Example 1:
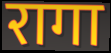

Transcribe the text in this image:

रागा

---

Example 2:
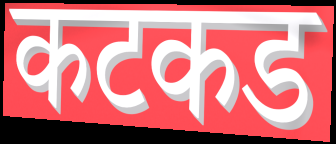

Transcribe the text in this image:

कटकड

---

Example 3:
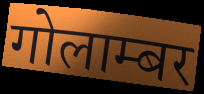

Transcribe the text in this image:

गोलाम्बर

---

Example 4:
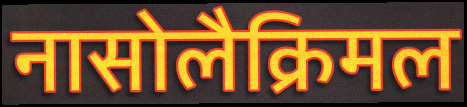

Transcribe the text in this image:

नासोलैक्रिमल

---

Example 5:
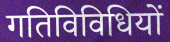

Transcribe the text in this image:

गतिविविधियों